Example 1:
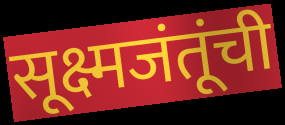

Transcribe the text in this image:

सूक्ष्मजंतूंची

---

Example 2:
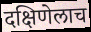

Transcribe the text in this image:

दक्षिणेलाच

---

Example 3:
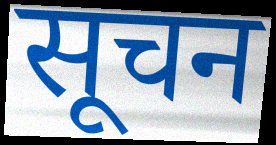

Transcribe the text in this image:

सूचन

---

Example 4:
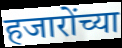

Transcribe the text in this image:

हजारोंच्या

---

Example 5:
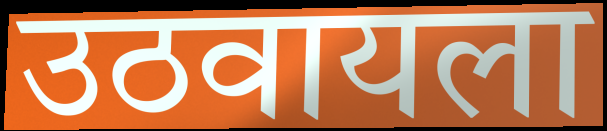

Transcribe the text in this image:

उठवायला